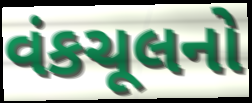
વંકચૂલનો